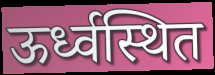
ऊर्ध्वस्थित